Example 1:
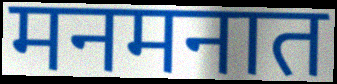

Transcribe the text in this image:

मनमनात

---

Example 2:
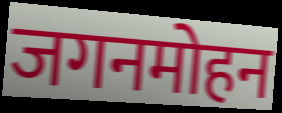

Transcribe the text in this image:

जगनमोहन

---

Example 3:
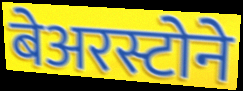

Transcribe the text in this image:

बेअरस्टोने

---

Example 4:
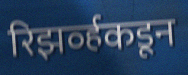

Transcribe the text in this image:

रिझर्व्हकडून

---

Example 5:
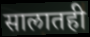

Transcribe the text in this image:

सालातही